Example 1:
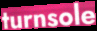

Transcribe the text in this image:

turnsole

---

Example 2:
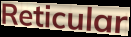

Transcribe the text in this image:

Reticular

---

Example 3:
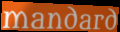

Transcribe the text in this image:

mandard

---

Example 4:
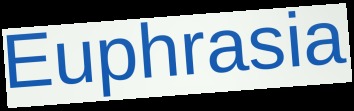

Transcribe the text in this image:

Euphrasia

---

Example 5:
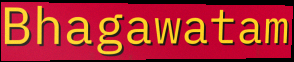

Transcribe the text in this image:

Bhagawatam